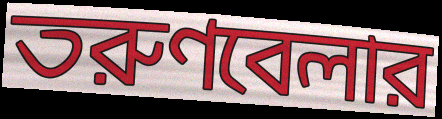
তরুণবেলার